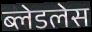
ब्लेडलेस